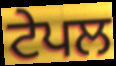
ਟੇਪਲ